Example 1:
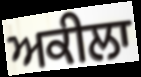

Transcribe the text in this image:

ਅਕੀਲਾ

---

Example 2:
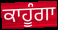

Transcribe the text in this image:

ਕਾਹੂੰਗਾ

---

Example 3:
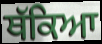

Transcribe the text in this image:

ਥੱਕਿਆ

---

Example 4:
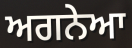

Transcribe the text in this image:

ਅਗਨੇਆ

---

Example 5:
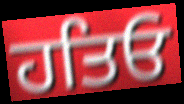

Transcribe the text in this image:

ਹਤਿਓ